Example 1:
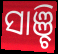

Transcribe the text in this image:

ସାଞ୍ଚି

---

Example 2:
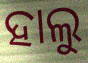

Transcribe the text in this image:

ହାଲୁ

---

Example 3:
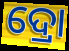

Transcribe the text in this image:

ଦ୍ରୋ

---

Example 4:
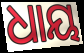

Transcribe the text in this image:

ଧାୟ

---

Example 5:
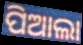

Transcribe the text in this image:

ପିଆଲା